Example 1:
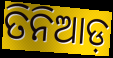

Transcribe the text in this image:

ତିନିଆଡ଼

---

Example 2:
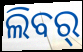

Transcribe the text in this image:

ଲିବର୍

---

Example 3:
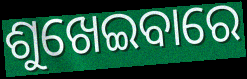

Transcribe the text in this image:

ଶୁଖେଇବାରେ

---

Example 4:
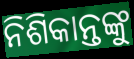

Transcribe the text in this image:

ନିଶିକାନ୍ତଙ୍କୁ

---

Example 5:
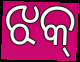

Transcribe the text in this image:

ଝକ୍